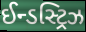
ઈન્ડસ્ટ્રિઝ